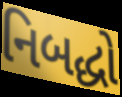
નિબદ્ધો